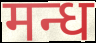
मन्ध